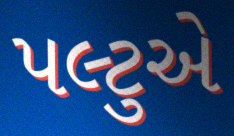
પલ્ટુએ